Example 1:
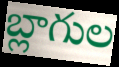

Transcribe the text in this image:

బ్లాగుల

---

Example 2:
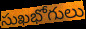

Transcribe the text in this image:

సుఖభోగులు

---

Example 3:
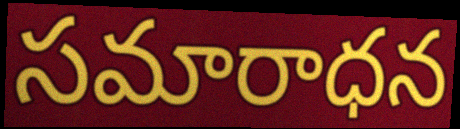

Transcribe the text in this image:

సమారాధన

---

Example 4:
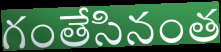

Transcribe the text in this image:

గంతేసినంత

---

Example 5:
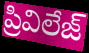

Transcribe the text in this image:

ప్రివిలేజ్